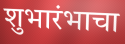
शुभारंभाचा